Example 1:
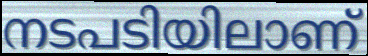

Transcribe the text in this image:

നടപടിയിലാണ്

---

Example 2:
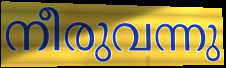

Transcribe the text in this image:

നീരുവന്നു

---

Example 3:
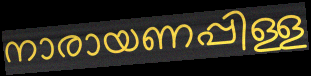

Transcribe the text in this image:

നാരായണപ്പിള്ള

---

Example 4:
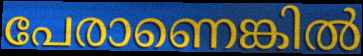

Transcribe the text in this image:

പേരാണെങ്കിൽ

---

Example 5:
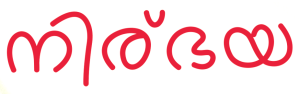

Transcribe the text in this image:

നിര്ഭയ